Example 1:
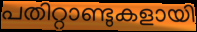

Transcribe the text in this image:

പതിറ്റാണ്ടുകളായി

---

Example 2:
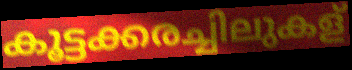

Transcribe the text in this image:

കൂട്ടക്കരച്ചിലുകള്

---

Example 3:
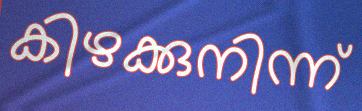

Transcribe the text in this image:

കിഴക്കുനിന്ന്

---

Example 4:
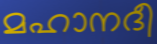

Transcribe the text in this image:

മഹാനദീ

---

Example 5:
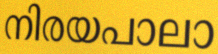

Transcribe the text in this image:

നിരയപാലാ